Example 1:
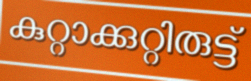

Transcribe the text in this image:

കുറ്റാക്കുറ്റിരുട്ട്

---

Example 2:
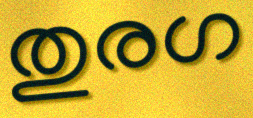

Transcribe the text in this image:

തുരഗ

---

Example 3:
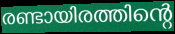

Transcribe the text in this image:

രണ്ടായിരത്തിന്റെ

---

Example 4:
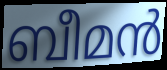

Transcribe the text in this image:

ബീമൻ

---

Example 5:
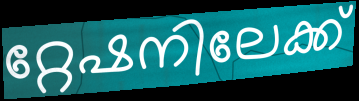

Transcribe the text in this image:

റ്റേഷനിലേക്ക്